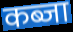
कब्जा